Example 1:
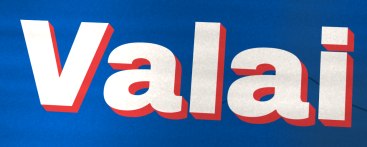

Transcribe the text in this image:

Valai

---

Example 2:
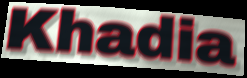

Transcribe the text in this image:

Khadia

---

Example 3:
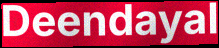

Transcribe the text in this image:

Deendayal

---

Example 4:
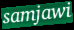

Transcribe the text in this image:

samjawi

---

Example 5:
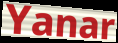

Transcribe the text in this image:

Yanar